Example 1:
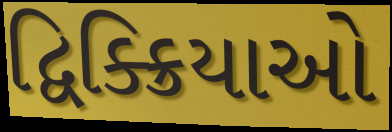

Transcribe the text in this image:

દ્વિક્ક્રિયાઓ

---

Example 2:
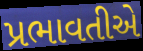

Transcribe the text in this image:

પ્રભાવતીએ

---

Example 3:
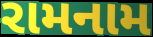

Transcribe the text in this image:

રામનામ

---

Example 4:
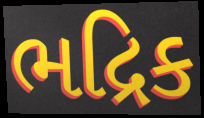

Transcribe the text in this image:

ભદ્રિક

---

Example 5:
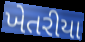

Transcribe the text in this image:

ખેતરીયા